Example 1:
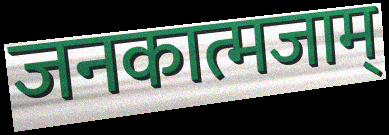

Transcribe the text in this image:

जनकात्मजाम्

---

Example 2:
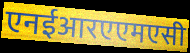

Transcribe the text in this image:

एनईआरएएमएसी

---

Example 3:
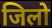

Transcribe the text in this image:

जिलो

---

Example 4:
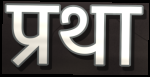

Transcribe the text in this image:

प्रथा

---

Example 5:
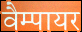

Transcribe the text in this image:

वैम्पायर